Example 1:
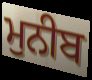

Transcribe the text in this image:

ਮੁਨੀਬ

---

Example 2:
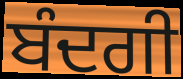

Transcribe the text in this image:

ਬੰਦਗੀ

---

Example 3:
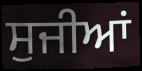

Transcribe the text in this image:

ਸੁਜੀਆਂ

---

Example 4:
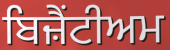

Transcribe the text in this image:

ਬਿਜ਼ੈਂਟੀਅਮ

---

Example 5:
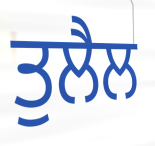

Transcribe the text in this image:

ਤੁਲੈਲ